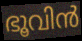
ഭൂവിൻ